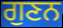
ਗੁਣਨ